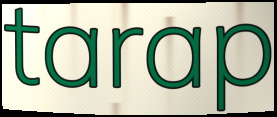
tarap